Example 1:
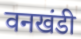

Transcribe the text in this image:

वनखंडी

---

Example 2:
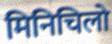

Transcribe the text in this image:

मिनिचिलो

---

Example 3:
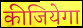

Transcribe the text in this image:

कीजियेगा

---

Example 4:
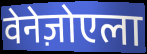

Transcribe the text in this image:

वेनेज़ोएला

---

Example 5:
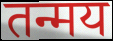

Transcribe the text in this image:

तन्मय